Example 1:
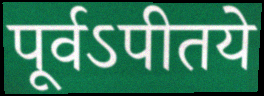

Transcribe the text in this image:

पूर्वऽपीतये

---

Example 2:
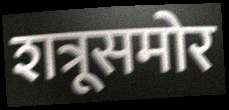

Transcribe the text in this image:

शत्रूसमोर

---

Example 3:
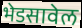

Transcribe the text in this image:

भेडसावेल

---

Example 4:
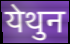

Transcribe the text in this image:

येथुन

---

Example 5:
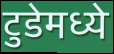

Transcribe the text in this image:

टुडेमध्ये